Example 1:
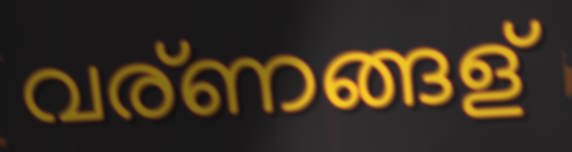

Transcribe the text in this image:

വര്ണങ്ങള്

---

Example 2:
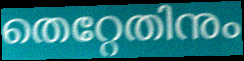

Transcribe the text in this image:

തെറ്റേതിനും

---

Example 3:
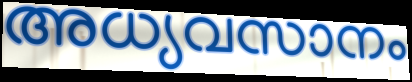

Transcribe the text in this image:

അധ്യവസാനം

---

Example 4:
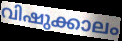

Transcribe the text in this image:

വിഷുക്കാലം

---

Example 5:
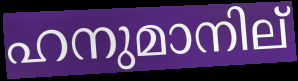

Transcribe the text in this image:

ഹനുമാനില്